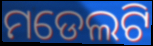
ମଡେଲଟି